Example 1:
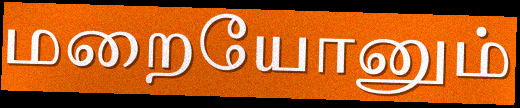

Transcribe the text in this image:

மறையோனும்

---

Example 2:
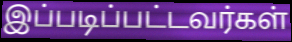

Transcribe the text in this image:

இப்படிப்பட்டவர்கள்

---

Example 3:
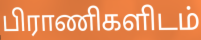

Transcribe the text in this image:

பிராணிகளிடம்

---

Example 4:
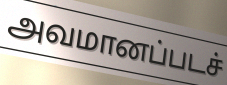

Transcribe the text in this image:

அவமானப்படச்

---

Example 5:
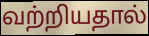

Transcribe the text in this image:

வற்றியதால்